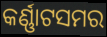
କର୍ଣ୍ଣାଟସମର